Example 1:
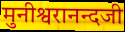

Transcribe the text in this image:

मुनीश्वरानन्दजी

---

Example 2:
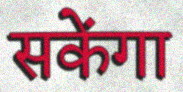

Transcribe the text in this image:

सकेंगा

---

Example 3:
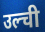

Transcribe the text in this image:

उल्ची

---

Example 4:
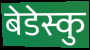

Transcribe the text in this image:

बेडेस्कु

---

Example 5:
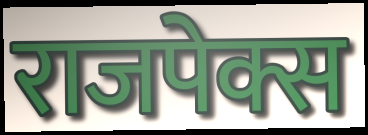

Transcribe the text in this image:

राजपेक्स